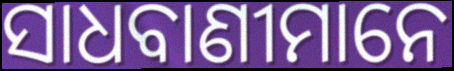
ସାଧବାଣୀମାନେ